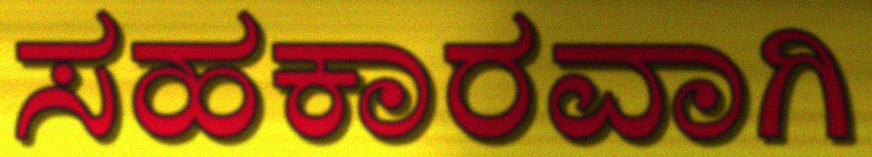
ಸಹಕಾರವಾಗಿ